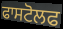
ਫਾਸਟੋਲਫ